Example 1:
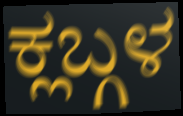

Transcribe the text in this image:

ಕ್ಲಬ್ಗಳ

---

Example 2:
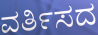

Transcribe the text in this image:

ವರ್ತಿಸದ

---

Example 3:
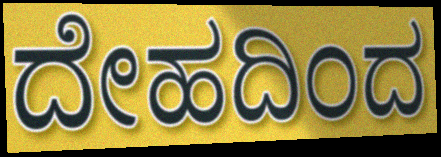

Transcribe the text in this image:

ದೇಹದಿಂದ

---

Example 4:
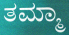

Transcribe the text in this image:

ತಮ್ಮಾ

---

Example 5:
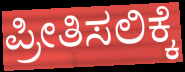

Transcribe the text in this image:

ಪ್ರೀತಿಸಲಿಕ್ಕೆ